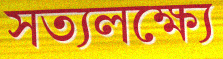
সত্যলক্ষ্যে